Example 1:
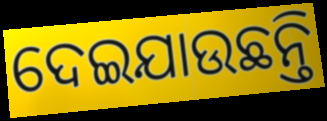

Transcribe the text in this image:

ଦେଇଯାଉଛନ୍ତି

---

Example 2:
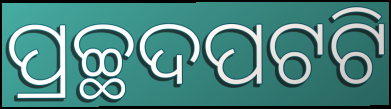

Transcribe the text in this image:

ପ୍ରଚ୍ଛଦପଟଟି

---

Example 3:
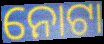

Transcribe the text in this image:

ନୋଟା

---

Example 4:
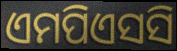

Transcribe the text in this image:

ଏମପିଏସସି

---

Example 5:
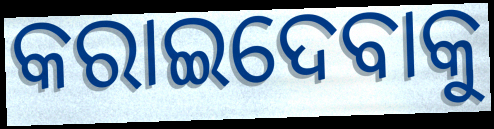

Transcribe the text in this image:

କରାଇଦେବାକୁ